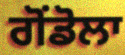
ਗੋਂਡੋਲਾ